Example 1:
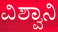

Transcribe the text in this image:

ವಿಶ್ವಾನಿ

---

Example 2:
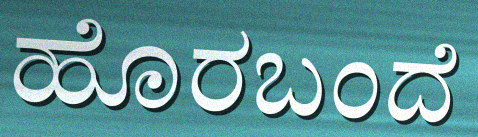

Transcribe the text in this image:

ಹೊರಬಂದೆ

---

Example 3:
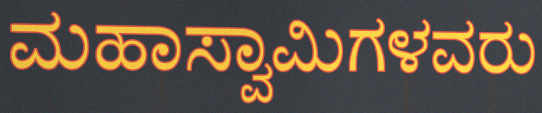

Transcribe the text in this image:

ಮಹಾಸ್ವಾಮಿಗಳವರು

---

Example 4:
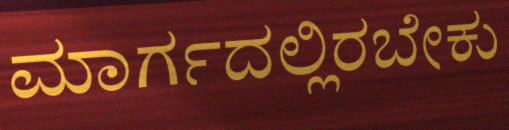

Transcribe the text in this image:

ಮಾರ್ಗದಲ್ಲಿರಬೇಕು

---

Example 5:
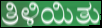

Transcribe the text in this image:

ತಿಳಿಯಿತು